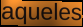
aqueles